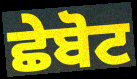
ਛੇਬੋਟ